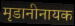
मृडानीनायक